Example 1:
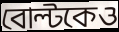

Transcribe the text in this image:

বোল্টকেও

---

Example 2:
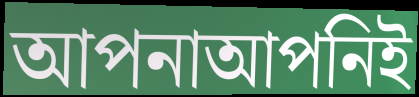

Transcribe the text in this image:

আপনাআপনিই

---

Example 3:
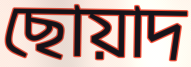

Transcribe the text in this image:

ছোয়াদ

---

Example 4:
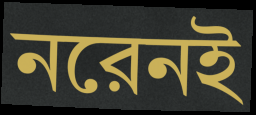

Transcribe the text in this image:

নরেনই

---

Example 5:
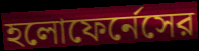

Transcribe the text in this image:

হলোফের্নেসের